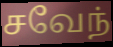
சவேந்